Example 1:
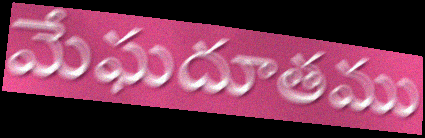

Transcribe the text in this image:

మేఘదూతము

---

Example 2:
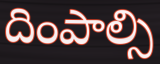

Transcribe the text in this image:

దింపాల్సి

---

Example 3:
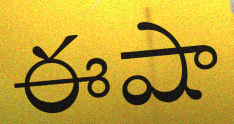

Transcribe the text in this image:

ఈషా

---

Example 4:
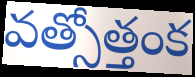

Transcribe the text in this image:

వత్సోత్తంక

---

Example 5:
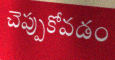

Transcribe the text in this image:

చెప్పుకోవడం